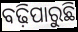
ବଢ଼ିପାରୁଛି